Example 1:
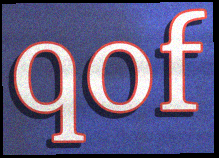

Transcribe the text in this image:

qof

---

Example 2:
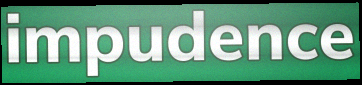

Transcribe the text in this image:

impudence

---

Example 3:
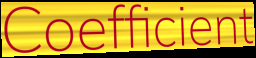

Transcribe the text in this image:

Coefficient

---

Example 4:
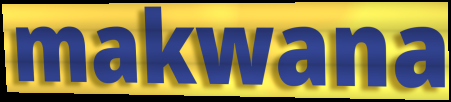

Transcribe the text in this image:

makwana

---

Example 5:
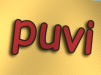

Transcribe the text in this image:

puvi